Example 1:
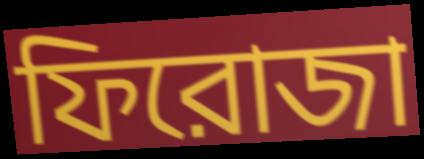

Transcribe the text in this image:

ফিরোজা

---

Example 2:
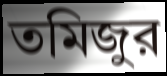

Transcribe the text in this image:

তমিজুর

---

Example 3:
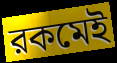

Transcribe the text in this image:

রকমেই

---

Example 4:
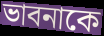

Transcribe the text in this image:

ভাবনাকে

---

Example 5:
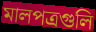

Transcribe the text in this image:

মালপত্রগুলি